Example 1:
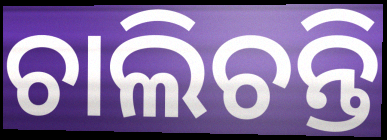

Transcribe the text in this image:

ଚାଲିଚନ୍ତି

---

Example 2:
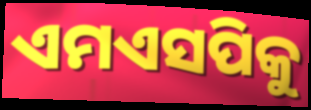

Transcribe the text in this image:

ଏମଏସପିକୁ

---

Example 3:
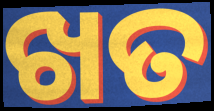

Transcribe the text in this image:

ଖତ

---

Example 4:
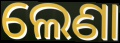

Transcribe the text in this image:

ଲେଣା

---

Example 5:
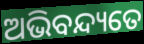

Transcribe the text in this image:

ଅଭିବନ୍ଦ୍ୟତେ